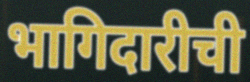
भागिदारीची